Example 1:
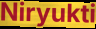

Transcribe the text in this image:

Niryukti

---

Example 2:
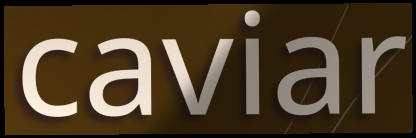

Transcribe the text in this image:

caviar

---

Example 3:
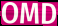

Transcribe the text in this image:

OMD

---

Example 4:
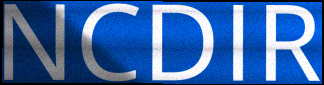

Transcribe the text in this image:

NCDIR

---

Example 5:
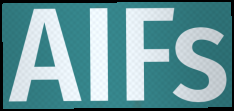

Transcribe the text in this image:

AIFs